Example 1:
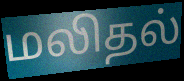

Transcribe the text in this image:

மலிதல்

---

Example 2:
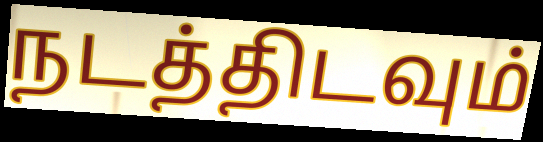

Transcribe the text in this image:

நடத்திடவும்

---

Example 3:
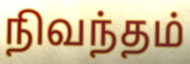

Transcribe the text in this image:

நிவந்தம்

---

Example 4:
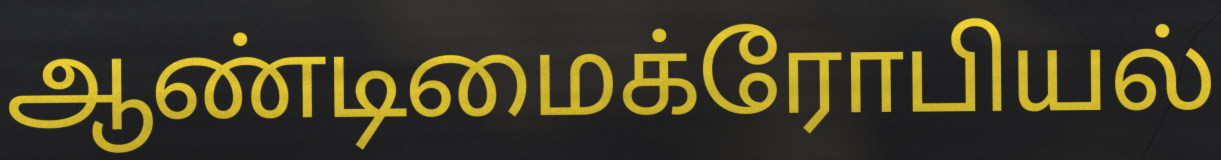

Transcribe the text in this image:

ஆண்டிமைக்ரோபியல்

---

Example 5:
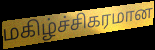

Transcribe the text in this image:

மகிழ்ச்சிகரமான